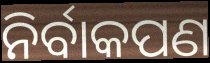
ନିର୍ବାକପଣ